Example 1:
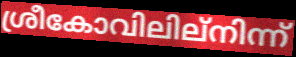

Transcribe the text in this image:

ശ്രീകോവിലില്നിന്ന്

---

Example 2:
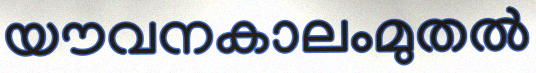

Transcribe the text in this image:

യൗവനകാലംമുതൽ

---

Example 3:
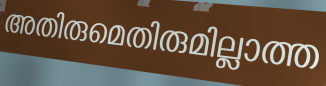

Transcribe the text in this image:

അതിരുമെതിരുമില്ലാത്ത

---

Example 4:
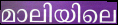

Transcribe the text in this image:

മാലിയിലെ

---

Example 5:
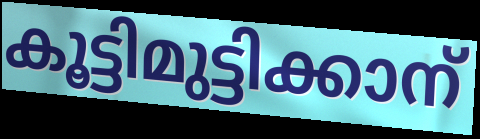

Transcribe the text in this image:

കൂട്ടിമുട്ടിക്കാന്